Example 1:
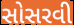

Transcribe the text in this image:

સોસરવી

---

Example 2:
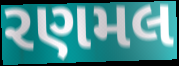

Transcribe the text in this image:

રણમલ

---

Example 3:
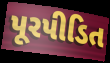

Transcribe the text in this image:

પૂરપીડિત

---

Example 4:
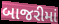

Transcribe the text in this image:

બાજરીમાં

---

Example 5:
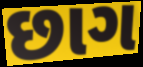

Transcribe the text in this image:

છાગ